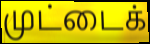
முட்டைக்